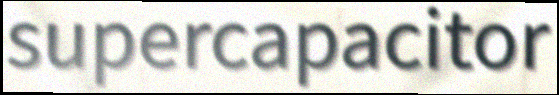
supercapacitor